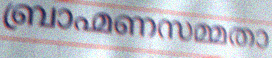
ബ്രാഹ്മണസമ്മതാ